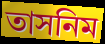
তাসনিম